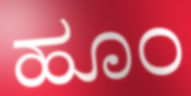
ಹೂಂ